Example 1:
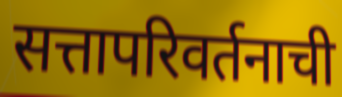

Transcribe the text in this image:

सत्तापरिवर्तनाची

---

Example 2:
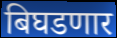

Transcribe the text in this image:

बिघडणार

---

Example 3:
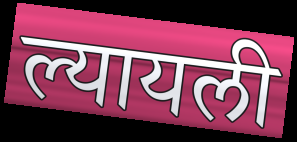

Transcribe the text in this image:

ल्यायली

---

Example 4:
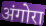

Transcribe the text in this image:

अंगोरा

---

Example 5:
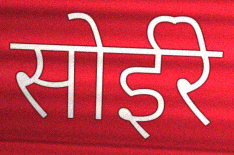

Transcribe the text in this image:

सोईरे